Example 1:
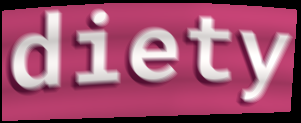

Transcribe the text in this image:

diety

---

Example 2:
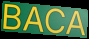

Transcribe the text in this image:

BACA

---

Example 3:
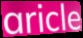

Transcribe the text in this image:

aricle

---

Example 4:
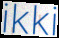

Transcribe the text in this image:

ikki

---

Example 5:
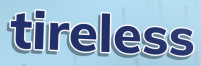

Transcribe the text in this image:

tireless